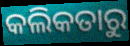
କଲିକତାରୁ